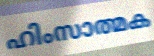
ഹിംസാത്മക